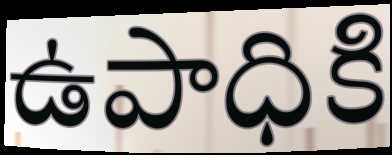
ఉపాధికి